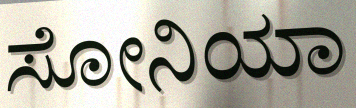
ಸೋನಿಯಾ